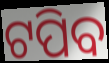
ଟପିବ